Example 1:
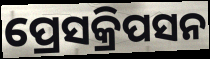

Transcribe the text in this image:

ପ୍ରେସକ୍ରିପସନ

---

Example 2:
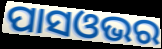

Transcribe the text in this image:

ପାସଓଭର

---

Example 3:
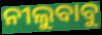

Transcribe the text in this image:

ନୀଲୁବାବୁ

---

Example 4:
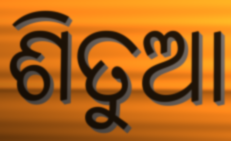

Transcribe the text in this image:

ଶିତୁଆ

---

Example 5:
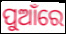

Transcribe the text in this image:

ପୁଆଁରେ